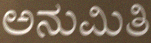
ಅನುಮಿತಿ